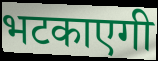
भटकाएगी